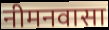
नीमनवासा